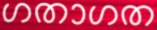
ഗതാഗത